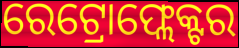
ରେଟ୍ରୋଫ୍ଲେକ୍ଟର